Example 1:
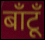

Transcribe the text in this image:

बाँटूँ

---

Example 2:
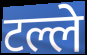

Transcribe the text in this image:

टल्ले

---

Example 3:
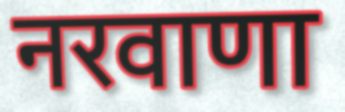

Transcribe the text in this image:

नरवाणा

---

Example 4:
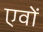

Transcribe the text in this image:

एवों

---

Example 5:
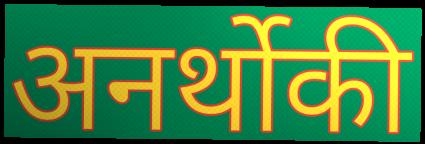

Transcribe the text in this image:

अनर्थोकी